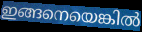
ഇങ്ങനെയെങ്കിൽ